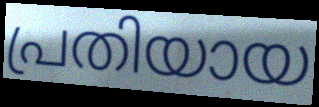
പ്രതിയായ